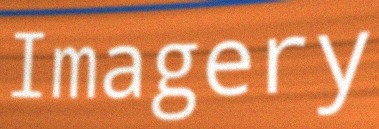
Imagery